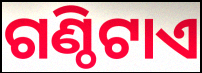
ଗଣ୍ଠିଟାଏ